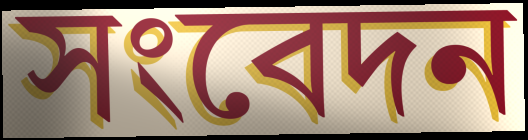
সংবেদন